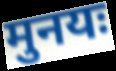
मुनयः